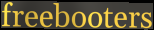
freebooters